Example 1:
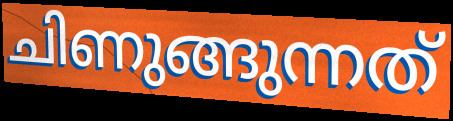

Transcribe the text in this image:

ചിണുങ്ങുന്നത്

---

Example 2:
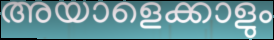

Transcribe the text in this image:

അയാളെക്കാളും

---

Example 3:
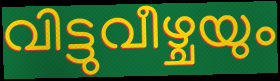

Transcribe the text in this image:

വിട്ടുവീഴ്ചയും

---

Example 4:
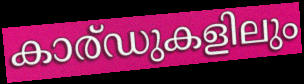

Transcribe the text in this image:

കാര്ഡുകളിലും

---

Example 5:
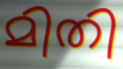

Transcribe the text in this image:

മിതി